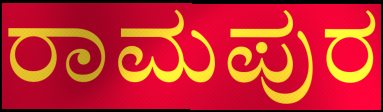
ರಾಮಪುರ